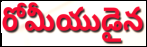
రోమీయుడైన